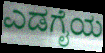
ಎಡಗೈಯ